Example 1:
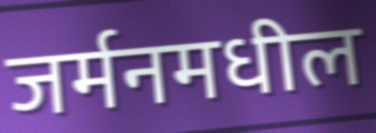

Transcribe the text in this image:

जर्मनमधील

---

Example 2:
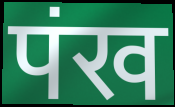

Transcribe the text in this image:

पंख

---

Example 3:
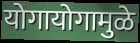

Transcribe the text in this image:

योगायोगामुळे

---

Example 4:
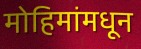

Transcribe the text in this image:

मोहिमांमधून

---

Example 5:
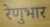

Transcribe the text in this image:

रेणुभार